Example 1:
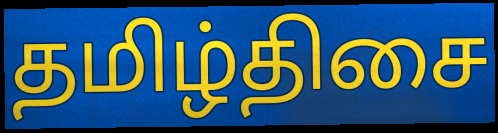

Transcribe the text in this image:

தமிழ்திசை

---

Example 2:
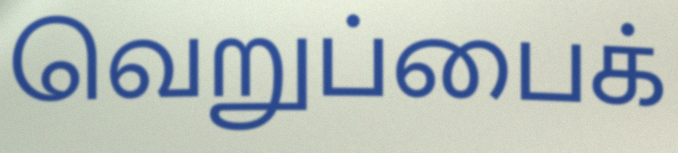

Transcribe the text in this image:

வெறுப்பைக்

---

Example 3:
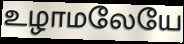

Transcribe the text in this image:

உழாமலேயே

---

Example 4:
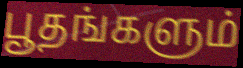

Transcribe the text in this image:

பூதங்களும்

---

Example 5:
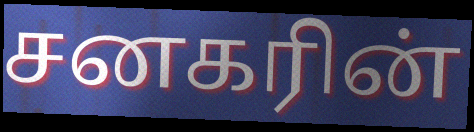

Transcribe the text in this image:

சனகரின்